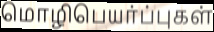
மொழிபெயர்ப்புகள்